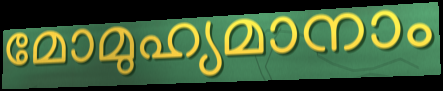
മോമുഹ്യമാനാം